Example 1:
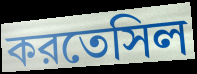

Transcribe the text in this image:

করতেসিল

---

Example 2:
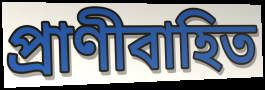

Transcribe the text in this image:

প্রাণীবাহিত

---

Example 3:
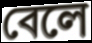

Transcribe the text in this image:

বেলে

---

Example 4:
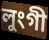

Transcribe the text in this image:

লুংগী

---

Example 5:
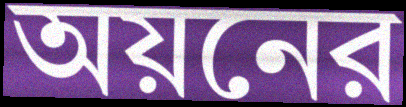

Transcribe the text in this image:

অয়নের